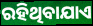
ରହିଥିବାଯାଏ